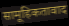
सामूहिकतावाद